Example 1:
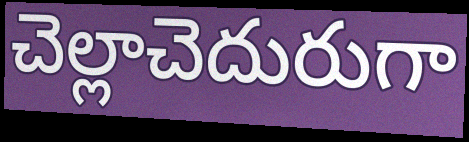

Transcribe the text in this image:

చెల్లాచెదురుగా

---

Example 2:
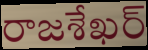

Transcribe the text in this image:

రాజశేఖర్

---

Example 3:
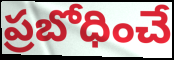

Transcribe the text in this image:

ప్రబోధించే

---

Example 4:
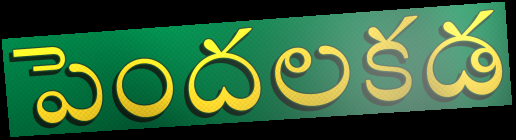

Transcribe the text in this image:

పెందలకడ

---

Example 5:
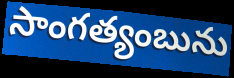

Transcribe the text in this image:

సాంగత్యంబును